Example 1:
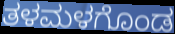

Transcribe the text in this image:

ತಳಮಳಗೊಂಡ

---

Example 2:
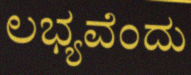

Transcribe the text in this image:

ಲಭ್ಯವೆಂದು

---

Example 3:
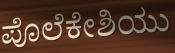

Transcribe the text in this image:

ಪೊಲೆಕೇಶಿಯು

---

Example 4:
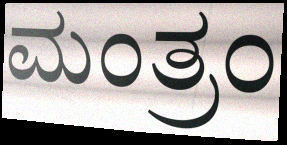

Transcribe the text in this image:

ಮಂತ್ರಂ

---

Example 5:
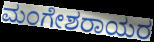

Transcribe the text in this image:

ಮಂಗೇಶರಾಯರ